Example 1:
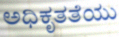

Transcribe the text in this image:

ಅಧಿಕೃತತೆಯು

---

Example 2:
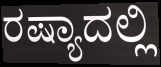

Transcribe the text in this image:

ರಷ್ಯಾದಲ್ಲಿ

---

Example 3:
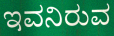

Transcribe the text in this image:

ಇವನಿರುವ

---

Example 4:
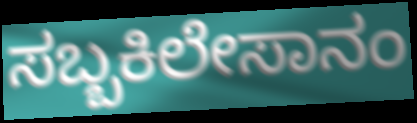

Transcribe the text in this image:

ಸಬ್ಬಕಿಲೇಸಾನಂ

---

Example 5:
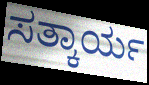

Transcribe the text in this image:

ಸತ್ಕಾರ್ಯ